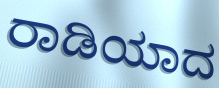
ರಾಡಿಯಾದ